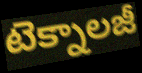
టెక్నాలజీ